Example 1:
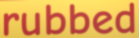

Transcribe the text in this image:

rubbed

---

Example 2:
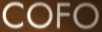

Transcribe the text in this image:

COFO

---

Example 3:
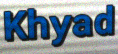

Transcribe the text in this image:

Khyad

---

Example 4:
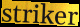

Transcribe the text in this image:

striker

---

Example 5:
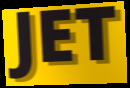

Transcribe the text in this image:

JET